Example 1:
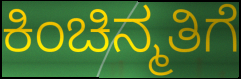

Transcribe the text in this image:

ಕಿಂಚಿನ್ಮತಿಗೆ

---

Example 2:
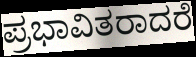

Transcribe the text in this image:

ಪ್ರಭಾವಿತರಾದರೆ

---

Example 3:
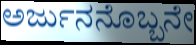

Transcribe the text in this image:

ಅರ್ಜುನನೊಬ್ಬನೇ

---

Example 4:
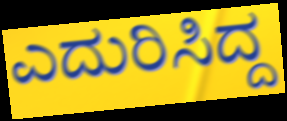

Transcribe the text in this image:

ಎದುರಿಸಿದ್ದ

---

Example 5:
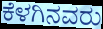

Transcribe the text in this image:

ಕೆಳಗಿನವರು